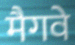
मैगवे